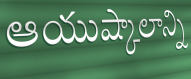
ఆయుష్కాలాన్ని